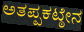
ಅತಪ್ಪಕಟ್ಠೇನ